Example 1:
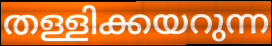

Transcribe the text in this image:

തള്ളിക്കയറുന്ന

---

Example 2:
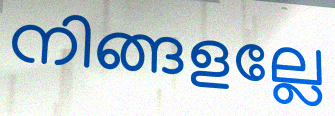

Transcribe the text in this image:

നിങ്ങളല്ലേ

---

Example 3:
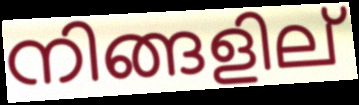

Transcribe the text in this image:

നിങ്ങളില്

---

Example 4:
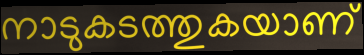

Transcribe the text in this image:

നാടുകടത്തുകയാണ്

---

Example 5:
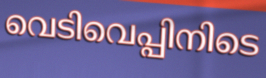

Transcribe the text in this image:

വെടിവെപ്പിനിടെ